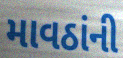
માવઠાંની